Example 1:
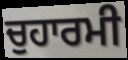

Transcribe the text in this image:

ਚੁਹਾਰਮੀ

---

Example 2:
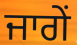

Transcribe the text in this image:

ਜਾਗੇਂ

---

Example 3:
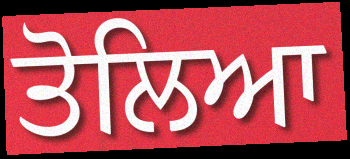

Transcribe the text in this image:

ਤੋਲਿਆ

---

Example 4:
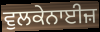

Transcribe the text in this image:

ਵੁਲਕੇਨਾਈਜ਼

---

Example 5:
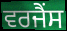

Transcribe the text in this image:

ਵਰਜੈਂਸ